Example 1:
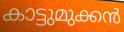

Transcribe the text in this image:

കാട്ടുമുക്കൻ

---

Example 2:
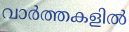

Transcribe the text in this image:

വാർത്തകളിൽ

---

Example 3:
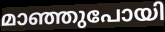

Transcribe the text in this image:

മാഞ്ഞുപോയി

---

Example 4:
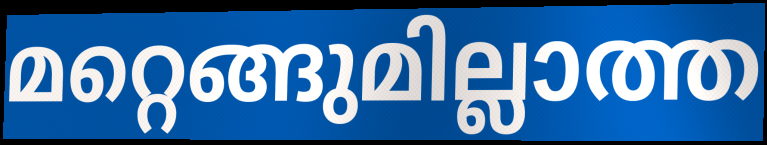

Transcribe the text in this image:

മറ്റെങ്ങുമില്ലാത്ത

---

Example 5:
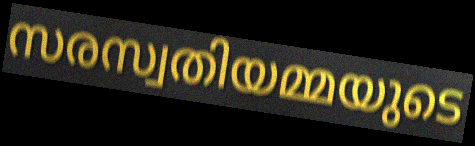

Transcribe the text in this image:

സരസ്വതിയമ്മയുടെ